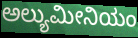
ಅಲ್ಯುಮೀನಿಯಂ